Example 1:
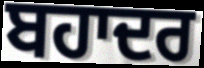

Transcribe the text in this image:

ਬਹਾਦਰ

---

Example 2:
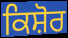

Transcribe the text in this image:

ਕਿਸ਼ੋਰ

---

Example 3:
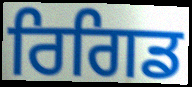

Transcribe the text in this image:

ਰਿਗਿਡ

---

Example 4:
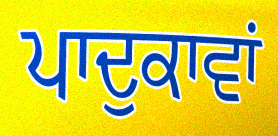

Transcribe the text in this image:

ਪਾਦੁਕਾਵਾਂ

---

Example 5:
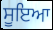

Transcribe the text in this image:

ਸੂਇਆ